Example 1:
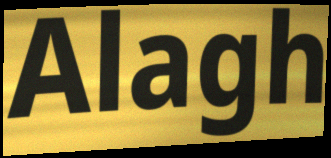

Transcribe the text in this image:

Alagh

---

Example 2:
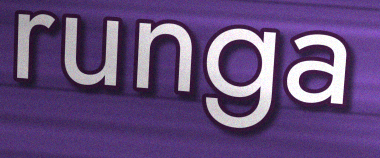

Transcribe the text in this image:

runga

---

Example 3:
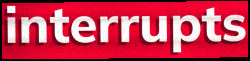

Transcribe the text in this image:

interrupts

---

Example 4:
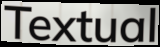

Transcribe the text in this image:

Textual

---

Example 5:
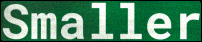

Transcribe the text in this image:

Smaller